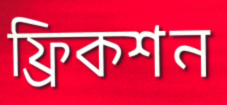
ফ্রিকশন